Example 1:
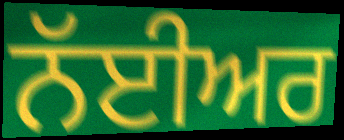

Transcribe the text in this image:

ਨੱਈਅਰ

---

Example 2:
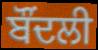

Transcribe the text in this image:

ਬੌਂਦਲੀ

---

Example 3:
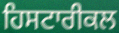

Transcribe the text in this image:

ਹਿਸਟਾਰੀਕਲ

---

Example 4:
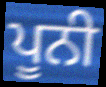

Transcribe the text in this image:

ਪੂਨੀ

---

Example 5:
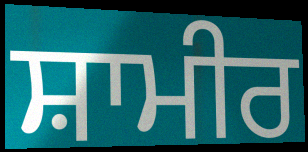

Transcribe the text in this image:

ਸ਼ਾਮੀਰ